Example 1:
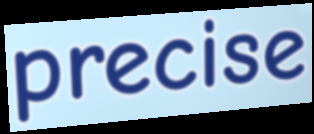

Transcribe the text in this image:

precise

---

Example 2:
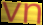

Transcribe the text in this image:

vn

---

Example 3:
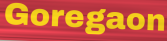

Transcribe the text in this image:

Goregaon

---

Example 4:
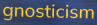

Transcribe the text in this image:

gnosticism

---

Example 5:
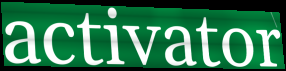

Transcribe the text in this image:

activator